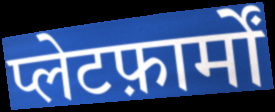
प्लेटफ़ार्मों